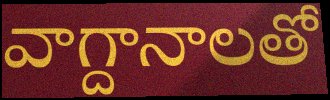
వాగ్దానాలతో